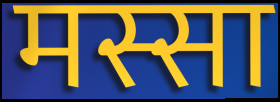
मस्‍सा